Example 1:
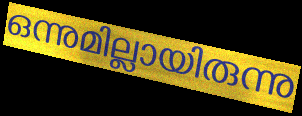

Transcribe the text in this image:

ഒന്നുമില്ലായിരുന്നു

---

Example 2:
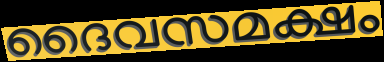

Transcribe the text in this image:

ദൈവസമക്ഷം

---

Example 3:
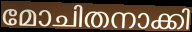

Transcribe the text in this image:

മോചിതനാക്കി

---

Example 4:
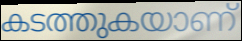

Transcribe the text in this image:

കടത്തുകയാണ്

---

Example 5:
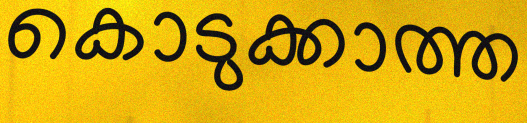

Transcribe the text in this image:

കൊടുക്കാത്ത